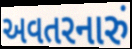
અવતરનારું